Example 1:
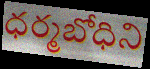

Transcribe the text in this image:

ధర్మబోధిని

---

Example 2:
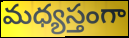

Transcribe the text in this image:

మధ్యస్తంగా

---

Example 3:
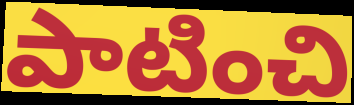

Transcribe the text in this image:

పాటించి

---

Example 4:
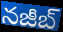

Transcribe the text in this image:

నజీబ్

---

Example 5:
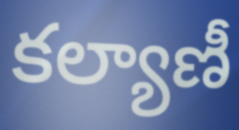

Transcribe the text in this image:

కల్యాణీ